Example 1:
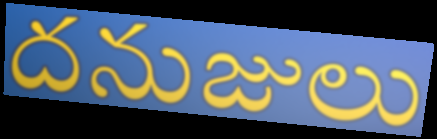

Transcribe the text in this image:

దనుజులు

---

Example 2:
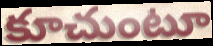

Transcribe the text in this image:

కూచుంటూ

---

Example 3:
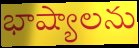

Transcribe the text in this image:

భాష్యాలను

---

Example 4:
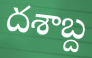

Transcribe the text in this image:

దశాబ్ద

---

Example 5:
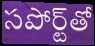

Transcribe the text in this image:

సపోర్ట్‌తో